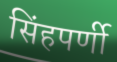
सिंहपर्णी